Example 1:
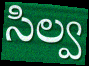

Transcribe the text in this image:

సిల్వ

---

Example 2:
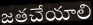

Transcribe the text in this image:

జతచేయాలి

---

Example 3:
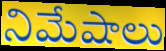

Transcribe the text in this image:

నిమేషాలు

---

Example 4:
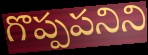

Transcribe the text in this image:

గొప్పపనిని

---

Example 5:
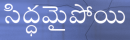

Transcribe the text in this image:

సిద్ధమైపోయి